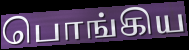
பொங்கிய